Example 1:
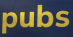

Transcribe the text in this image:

pubs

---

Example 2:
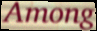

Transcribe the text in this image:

Among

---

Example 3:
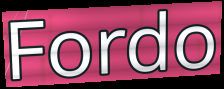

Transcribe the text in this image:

Fordo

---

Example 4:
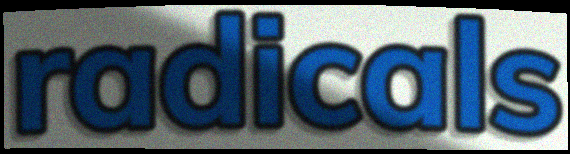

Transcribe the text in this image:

radicals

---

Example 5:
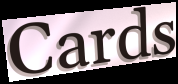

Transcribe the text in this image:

Cards